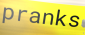
pranks